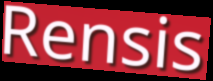
Rensis